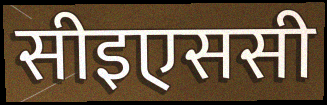
सीइएससी